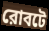
রোবটে